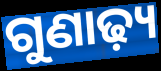
ଗୁଣାଢ଼୍ୟ